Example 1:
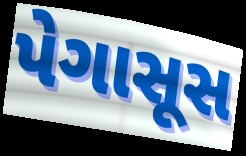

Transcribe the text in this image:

પેગાસૂસ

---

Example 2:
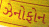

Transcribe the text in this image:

ઝેનોફોન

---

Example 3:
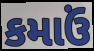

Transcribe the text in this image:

કમાઉં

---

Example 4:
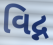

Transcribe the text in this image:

વિદ્ન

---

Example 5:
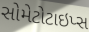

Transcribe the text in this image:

સોમેટોટાઇપ્સ